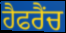
ਹੈਫਰੈਂਚ